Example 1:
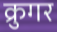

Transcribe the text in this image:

क्रुगर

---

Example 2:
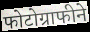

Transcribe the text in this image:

फोटोग्राफीने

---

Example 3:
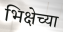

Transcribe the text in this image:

भिक्षेच्या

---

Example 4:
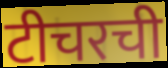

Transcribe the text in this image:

टीचरची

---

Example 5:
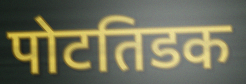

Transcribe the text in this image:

पोटतिडक